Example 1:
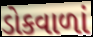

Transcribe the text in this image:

ડોકવાળાં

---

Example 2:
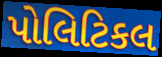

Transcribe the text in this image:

પોલિટિકલ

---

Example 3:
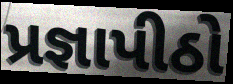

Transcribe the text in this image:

પ્રજ્ઞાપીઠો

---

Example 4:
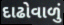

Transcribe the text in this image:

દાઢોવાળું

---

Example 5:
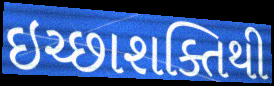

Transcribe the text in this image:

ઇચ્છાશક્તિથી